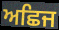
ਅਛਿਜ